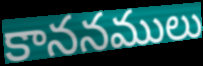
కాననములు